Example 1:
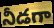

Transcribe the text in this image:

నీడగా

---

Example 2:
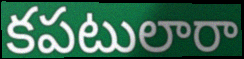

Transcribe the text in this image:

కపటులారా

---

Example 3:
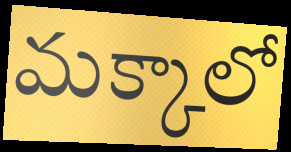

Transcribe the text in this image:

మక్కాలో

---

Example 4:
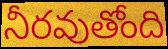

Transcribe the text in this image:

నీరవుతోంది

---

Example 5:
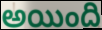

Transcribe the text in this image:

అయింది